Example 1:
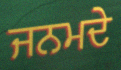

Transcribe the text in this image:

ਜਨਮਦੇ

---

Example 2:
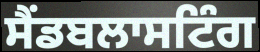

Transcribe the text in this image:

ਸੈਂਡਬਲਾਸਟਿੰਗ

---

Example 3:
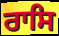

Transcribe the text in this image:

ਰਾਸਿ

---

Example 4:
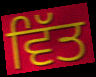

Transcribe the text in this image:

ਵਿੱਤ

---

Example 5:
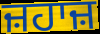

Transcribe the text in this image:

ਜ਼ਹਾਜ਼